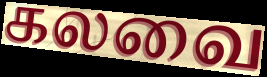
கலவை